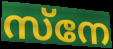
സ്നേ